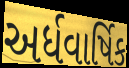
અર્ધવાર્ષિક